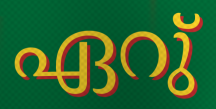
ഏറു്